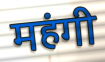
महंगी